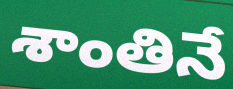
శాంతినే